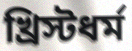
খ্রিস্টধর্ম